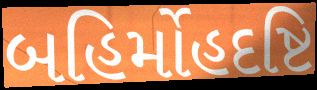
બહિર્મોહદષ્ટિ